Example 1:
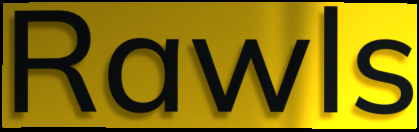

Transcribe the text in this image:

Rawls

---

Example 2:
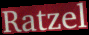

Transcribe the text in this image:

Ratzel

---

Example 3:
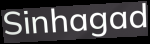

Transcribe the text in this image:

Sinhagad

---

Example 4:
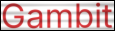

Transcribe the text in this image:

Gambit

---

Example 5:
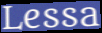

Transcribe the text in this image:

Lessa